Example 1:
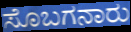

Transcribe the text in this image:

ಸೊಬಗನಾರು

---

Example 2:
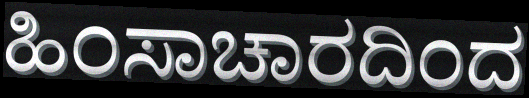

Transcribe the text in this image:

ಹಿಂಸಾಚಾರದಿಂದ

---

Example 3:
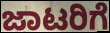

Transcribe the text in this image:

ಜಾಟರಿಗೆ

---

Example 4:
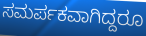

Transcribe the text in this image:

ಸಮರ್ಪಕವಾಗಿದ್ದರೂ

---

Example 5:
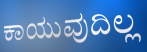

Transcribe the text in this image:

ಕಾಯುವುದಿಲ್ಲ